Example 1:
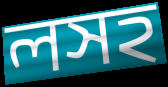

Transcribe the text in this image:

লসহ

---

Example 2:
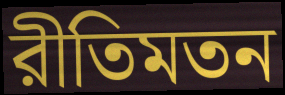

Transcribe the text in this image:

রীতিমতন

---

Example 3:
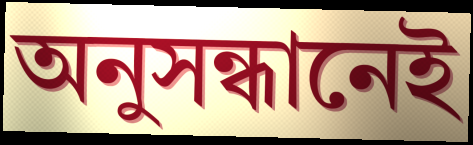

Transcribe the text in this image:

অনুসন্ধানেই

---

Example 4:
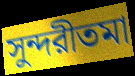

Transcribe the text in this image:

সুন্দরীতমা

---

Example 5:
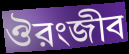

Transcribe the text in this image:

ঔরংজীব